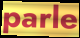
parle